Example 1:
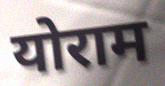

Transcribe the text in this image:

योराम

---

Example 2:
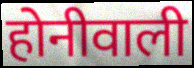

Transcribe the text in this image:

होनीवाली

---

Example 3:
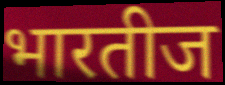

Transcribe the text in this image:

भारतीज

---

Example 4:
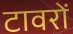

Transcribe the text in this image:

टावरों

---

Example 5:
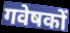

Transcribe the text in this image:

गवेषकों